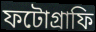
ফটোগ্ৰাফি